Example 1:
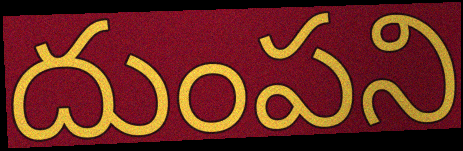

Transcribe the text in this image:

దుంపని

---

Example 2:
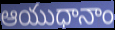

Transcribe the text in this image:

ఆయుధానాం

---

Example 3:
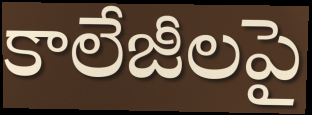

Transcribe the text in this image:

కాలేజీలపై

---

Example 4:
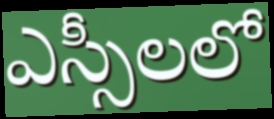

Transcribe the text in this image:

ఎస్సీలలో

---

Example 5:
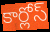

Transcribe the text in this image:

కార్లోస్